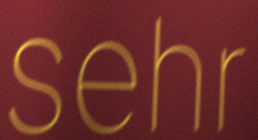
sehr